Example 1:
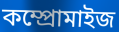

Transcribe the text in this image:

কম্প্রোমাইজ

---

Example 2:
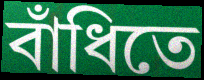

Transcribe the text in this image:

বাঁধিতে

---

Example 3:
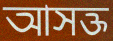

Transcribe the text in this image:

আসক্ত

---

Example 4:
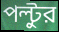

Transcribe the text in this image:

পল্টুর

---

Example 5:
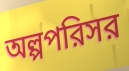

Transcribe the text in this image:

অল্পপরিসর